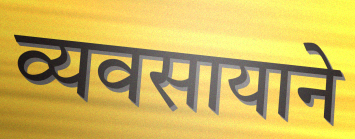
व्यवसायाने